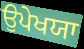
ਉਪੇਖਯਾ